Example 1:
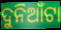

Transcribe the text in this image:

ଦୁନିଆଁଟା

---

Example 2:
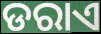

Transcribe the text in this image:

ଡରାଏ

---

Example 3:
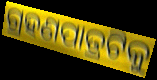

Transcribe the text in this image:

ଗ୍ରହଣପାତ୍ରଟିକୁ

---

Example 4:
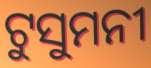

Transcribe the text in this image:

ଟୁସୁମନୀ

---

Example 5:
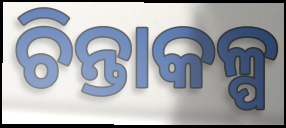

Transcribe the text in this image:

ଚିନ୍ତାକଳ୍ପ